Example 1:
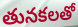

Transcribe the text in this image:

తునకలతో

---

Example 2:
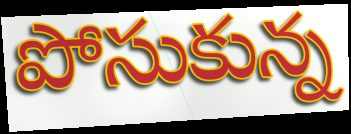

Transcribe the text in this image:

పోసుకున్న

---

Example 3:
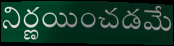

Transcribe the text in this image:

నిర్ణయించడమే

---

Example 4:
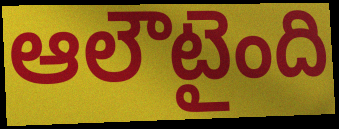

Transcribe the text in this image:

ఆలౌటైంది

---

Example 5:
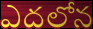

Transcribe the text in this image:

ఎదలోన